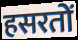
हसरतों